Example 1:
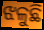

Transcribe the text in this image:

ଝଳୁଛି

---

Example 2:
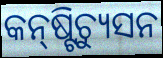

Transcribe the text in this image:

କନ୍‍ଷ୍ଟିଚ୍ୟୁସନ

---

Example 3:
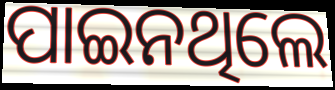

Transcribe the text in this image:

ପାଇନଥିଲେ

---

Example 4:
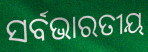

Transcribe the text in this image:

ସର୍ବଭାରତୀୟ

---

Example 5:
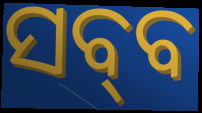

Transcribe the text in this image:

ସବ୍‌ବ